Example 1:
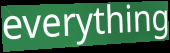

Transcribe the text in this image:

everything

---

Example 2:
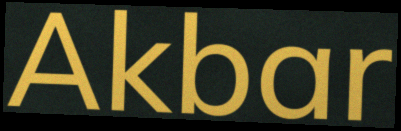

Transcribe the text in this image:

Akbar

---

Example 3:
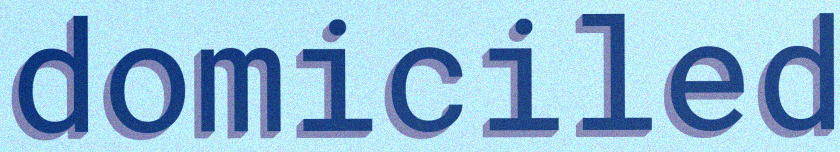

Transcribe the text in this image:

domiciled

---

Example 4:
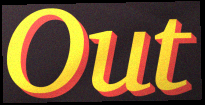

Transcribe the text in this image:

Out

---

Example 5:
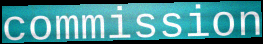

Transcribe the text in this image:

commission